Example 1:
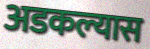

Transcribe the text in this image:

अडकल्यास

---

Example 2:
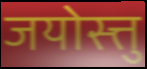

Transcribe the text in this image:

जयोस्त्तु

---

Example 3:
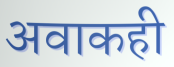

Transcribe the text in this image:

अवाकही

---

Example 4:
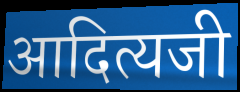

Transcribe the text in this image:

आदित्यजी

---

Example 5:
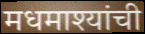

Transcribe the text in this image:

मधमाश्‍यांची